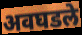
अवघडले